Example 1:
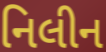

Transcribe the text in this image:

નિલીન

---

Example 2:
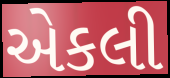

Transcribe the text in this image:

એકલી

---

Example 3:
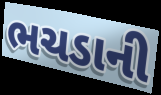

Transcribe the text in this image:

ભચડાની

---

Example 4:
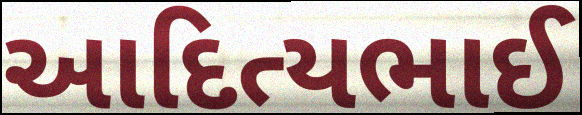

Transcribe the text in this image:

આદિત્યભાઈ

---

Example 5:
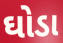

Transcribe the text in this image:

ઘોડા